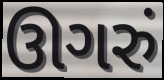
ઊગરું